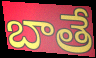
బాతే